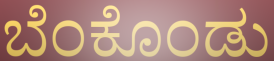
ಬೆಂಕೊಂಡು